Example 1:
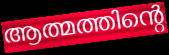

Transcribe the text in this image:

ആത്മത്തിന്റെ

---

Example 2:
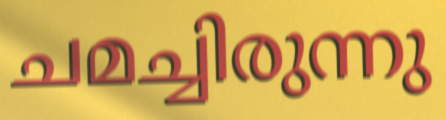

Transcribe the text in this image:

ചമച്ചിരുന്നു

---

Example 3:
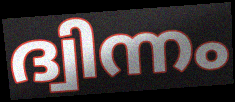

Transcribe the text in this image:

ദ്വിന്നം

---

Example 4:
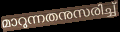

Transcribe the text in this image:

മാറുന്നതനുസരിച്ച്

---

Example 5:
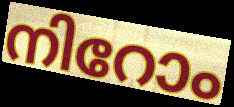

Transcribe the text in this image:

നിറോം